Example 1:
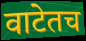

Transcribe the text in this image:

वाटेतच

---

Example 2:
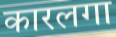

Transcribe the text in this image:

कारलगा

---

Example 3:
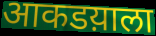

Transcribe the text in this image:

आकडय़ाला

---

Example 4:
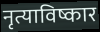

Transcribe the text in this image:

नृत्याविष्कार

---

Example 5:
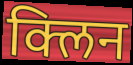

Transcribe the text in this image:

क्लिन